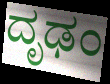
ದೃಢಂ